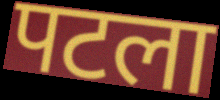
पटला